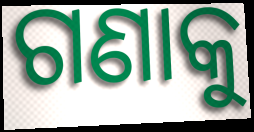
ଗଣାକୁ